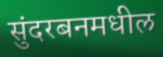
सुंदरबनमधील